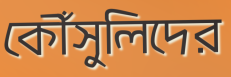
কৌঁসুলিদের